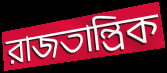
রাজতান্ত্রিক